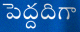
పెద్దదిగా